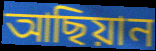
আছিয়ান